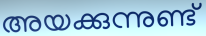
അയക്കുന്നുണ്ട്